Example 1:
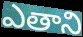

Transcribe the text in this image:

ఎతాని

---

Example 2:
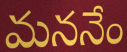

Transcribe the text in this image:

మననేం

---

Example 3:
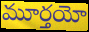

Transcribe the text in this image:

మూర్తయో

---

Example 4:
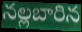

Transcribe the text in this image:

నల్లబారిన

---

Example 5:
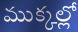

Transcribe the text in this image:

ముక్కల్లో